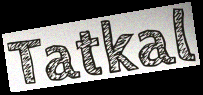
Tatkal